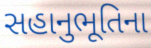
સહાનુભૂતિના